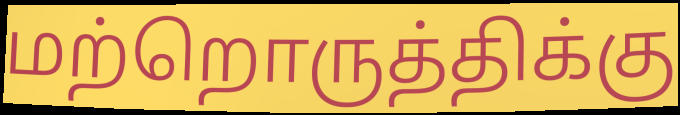
மற்றொருத்திக்கு